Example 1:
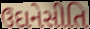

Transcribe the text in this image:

ઉદાનેસીતિ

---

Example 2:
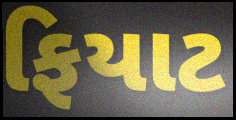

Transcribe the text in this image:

ફિયાટ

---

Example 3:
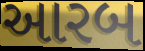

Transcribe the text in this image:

આરબ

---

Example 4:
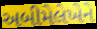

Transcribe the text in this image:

અબીમેલેખેને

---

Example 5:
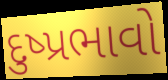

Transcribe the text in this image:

દુષ્પ્રભાવો